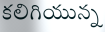
కలిగియున్న